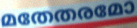
മതേതരമോ